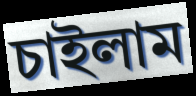
চাইলাম